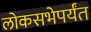
लोकसभेपर्यंत